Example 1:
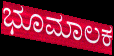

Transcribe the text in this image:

ಭೂಮಾಲಕ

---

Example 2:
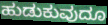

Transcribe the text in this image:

ಹುಡುಕುವುದೂ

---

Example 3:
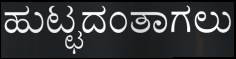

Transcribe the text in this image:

ಹುಟ್ಟದಂತಾಗಲು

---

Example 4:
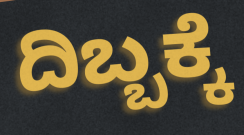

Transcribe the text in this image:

ದಿಬ್ಬಕ್ಕೆ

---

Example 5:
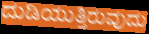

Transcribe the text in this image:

ದುಡಿಯುತ್ತಿರುವುದು